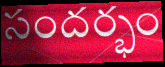
సందర్భం